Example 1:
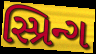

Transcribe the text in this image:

સ્પ્રિન્ગ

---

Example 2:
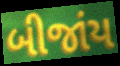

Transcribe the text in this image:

બીજાંય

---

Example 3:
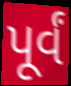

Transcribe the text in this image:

પૂર્વં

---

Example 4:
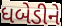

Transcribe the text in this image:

ધબેડીને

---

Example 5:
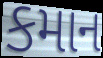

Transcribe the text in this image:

કમાન